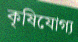
কৃষিযোগ্য